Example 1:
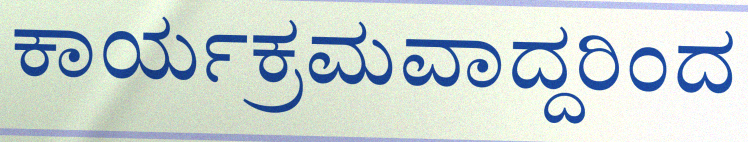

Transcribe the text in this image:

ಕಾರ್ಯಕ್ರಮವಾದ್ದರಿಂದ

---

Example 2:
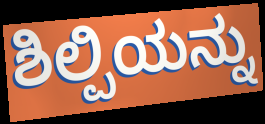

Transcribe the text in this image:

ಶಿಲ್ಪಿಯನ್ನು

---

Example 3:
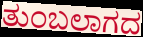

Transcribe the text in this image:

ತುಂಬಲಾಗದ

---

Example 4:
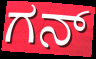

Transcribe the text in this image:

ಗನ್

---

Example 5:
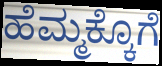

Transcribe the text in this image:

ಹೆಮ್ಮಕ್ಕೊಗೆ